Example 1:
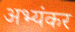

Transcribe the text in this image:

अभ्यंकर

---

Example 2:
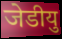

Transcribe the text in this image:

जेडीयु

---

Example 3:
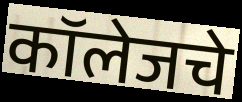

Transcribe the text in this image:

कॉलेजचे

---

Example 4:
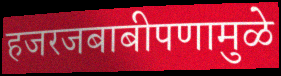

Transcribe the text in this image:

हजरजबाबीपणामुळे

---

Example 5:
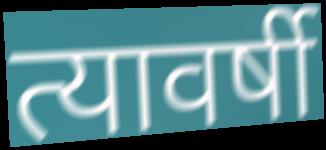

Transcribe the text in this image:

त्यावर्षी